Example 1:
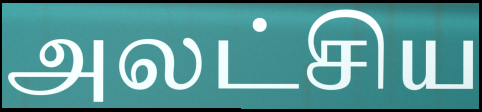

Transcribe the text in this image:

அலட்சிய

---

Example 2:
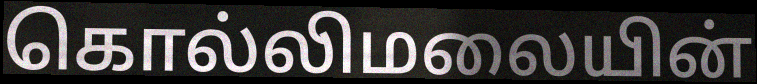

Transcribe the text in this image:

கொல்லிமலையின்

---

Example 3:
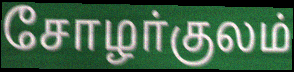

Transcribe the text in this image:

சோழர்குலம்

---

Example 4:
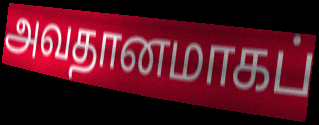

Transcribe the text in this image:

அவதானமாகப்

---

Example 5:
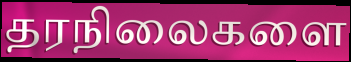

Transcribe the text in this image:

தரநிலைகளை